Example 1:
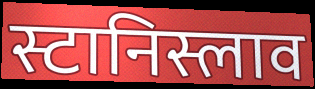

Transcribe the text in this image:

स्टानिस्लाव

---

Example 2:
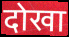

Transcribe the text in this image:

दोखा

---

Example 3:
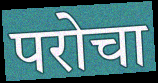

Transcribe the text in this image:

परोचा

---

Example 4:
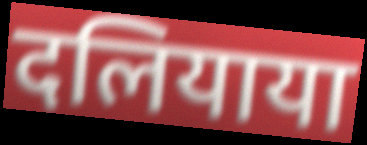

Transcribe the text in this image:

दलियाया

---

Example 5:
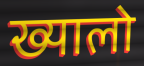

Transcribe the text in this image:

ख्यालो